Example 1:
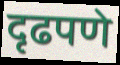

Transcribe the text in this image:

दृढपणे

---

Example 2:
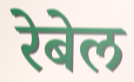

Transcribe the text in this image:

रेबेल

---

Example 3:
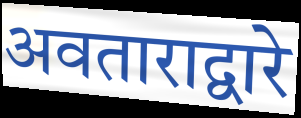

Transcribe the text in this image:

अवताराद्वारे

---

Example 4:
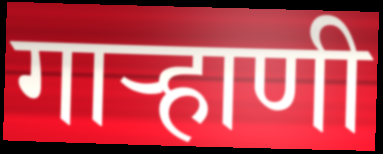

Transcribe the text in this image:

गार्‍हाणी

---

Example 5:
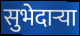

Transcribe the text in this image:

सुभेदाऱ्या